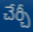
చేర్చీ